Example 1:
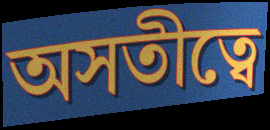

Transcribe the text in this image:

অসতীত্বে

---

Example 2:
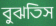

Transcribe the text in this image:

বুঝতিস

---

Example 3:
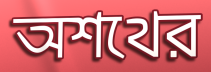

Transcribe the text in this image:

অশথের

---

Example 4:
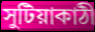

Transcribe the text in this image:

সুটিয়াকাঠী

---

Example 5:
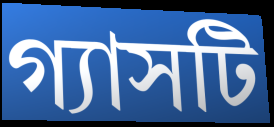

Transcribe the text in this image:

গ্যাসটি